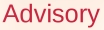
Advisory